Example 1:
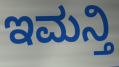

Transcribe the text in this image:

ಇಮನ್ತಿ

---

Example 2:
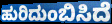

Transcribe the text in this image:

ಹುರಿದುಂಬಿಸಿದೆ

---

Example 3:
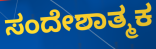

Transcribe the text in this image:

ಸಂದೇಶಾತ್ಮಕ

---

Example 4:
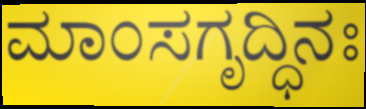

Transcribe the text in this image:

ಮಾಂಸಗೃದ್ಧಿನಃ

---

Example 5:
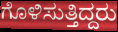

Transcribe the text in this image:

ಗೊಳಿಸುತ್ತಿದ್ದರು